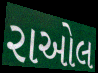
રાઓલ